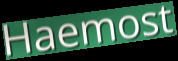
Haemost